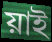
য়াই